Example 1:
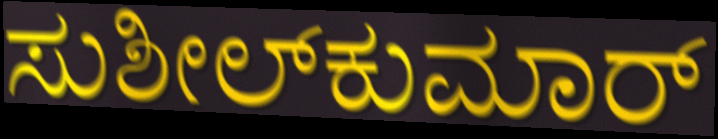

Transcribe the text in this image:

ಸುಶೀಲ್‌ಕುಮಾರ್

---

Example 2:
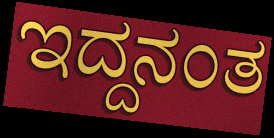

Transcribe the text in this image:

ಇದ್ದನಂತ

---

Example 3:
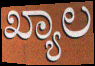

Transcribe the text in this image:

ಖ್ಯಾಲ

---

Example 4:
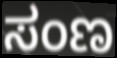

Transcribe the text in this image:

ಸಂಣ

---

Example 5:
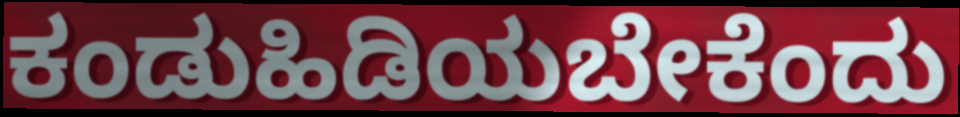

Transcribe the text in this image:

ಕಂಡುಹಿಡಿಯಬೇಕೆಂದು